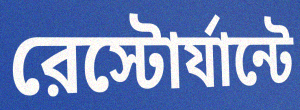
রেস্টোর্যান্টে